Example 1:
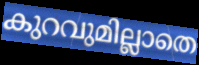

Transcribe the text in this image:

കുറവുമില്ലാതെ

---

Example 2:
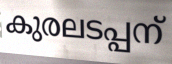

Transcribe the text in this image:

കുരലടപ്പന്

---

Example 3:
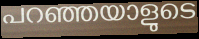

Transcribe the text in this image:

പറഞ്ഞയാളുടെ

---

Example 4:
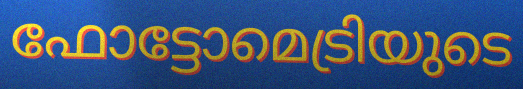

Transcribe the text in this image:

ഫോട്ടോമെട്രിയുടെ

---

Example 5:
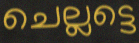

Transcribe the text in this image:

ചെല്ലട്ടെ